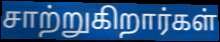
சாற்றுகிறார்கள்